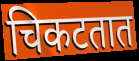
चिकटतात